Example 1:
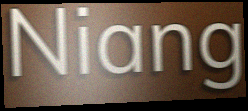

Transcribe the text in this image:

Niang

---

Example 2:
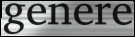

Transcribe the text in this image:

genere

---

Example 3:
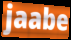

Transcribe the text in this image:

jaabe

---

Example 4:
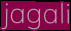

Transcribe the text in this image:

jagali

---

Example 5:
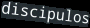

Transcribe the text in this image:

discipulos